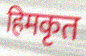
हिमकृत